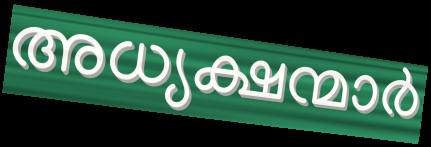
അധ്യക്ഷന്മാർ